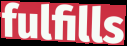
fulfills